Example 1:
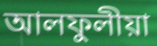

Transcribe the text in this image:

আলফুলীয়া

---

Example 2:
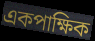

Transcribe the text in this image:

একপাক্ষিক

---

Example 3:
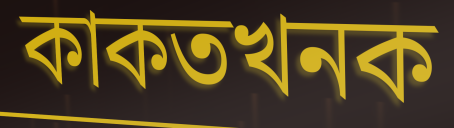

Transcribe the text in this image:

কাকতখনক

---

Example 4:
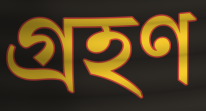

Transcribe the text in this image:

গ্ৰহণ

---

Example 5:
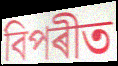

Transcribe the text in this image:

বিপৰীত